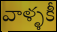
వాళ్ళకీ